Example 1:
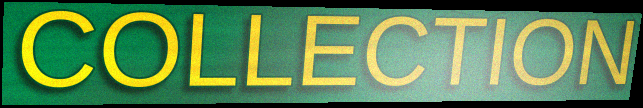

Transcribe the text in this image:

COLLECTION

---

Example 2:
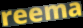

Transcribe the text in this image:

reema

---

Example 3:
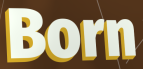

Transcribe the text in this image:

Born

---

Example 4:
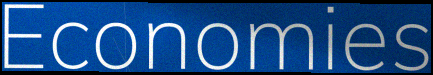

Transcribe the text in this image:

Economies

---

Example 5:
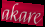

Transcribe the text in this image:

akare